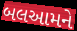
બલઆમને